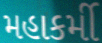
મહાકર્મી